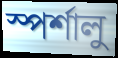
স্পর্শালু